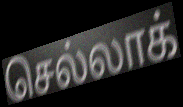
செல்லாக்